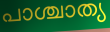
പാശ്ചാത്യ